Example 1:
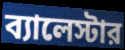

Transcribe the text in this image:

ব্যালেস্টার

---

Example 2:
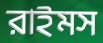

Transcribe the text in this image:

রাইমস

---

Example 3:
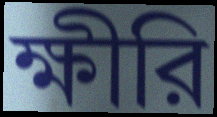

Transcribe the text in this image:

ক্ষীরি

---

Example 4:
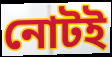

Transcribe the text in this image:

নোটই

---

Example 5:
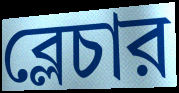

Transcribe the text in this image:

ব্লেচার